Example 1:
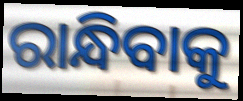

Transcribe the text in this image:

ରାନ୍ଧିବାକୁ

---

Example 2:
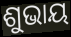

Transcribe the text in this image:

ଶୁଭାୟ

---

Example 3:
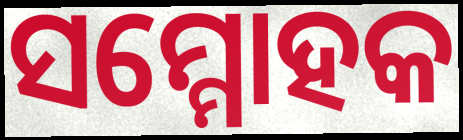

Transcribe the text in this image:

ସମ୍ମୋହକ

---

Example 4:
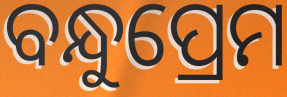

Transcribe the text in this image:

ବନ୍ଧୁପ୍ରେମ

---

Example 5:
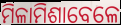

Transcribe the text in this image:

ମିଳାମିଶାବେଳେ